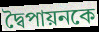
দ্বৈপায়নকে